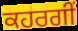
ਕਹਰਗੀਂ